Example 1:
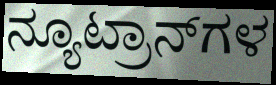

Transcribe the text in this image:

ನ್ಯೂಟ್ರಾನ್‌ಗಳ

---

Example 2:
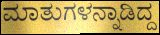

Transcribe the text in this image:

ಮಾತುಗಳನ್ನಾಡಿದ್ದ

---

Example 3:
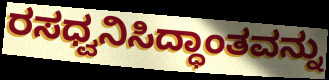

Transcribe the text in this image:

ರಸಧ್ವನಿಸಿದ್ಧಾಂತವನ್ನು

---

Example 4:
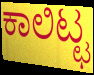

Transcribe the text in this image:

ಕಾಲಿಟ್ಟ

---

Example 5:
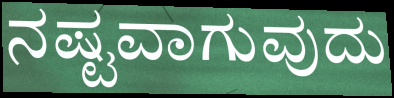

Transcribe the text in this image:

ನಷ್ಟವಾಗುವುದು